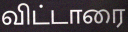
விட்டாரை